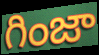
గింజా